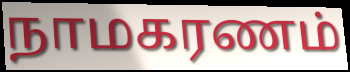
நாமகரணம்